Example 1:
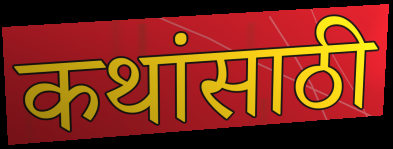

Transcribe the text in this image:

कथांसाठी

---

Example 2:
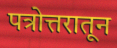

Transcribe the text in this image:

पत्रोत्तरातून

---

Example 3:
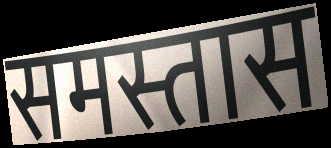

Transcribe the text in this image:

समस्तास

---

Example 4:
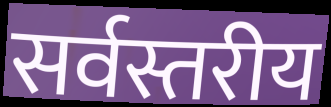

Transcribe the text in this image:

सर्वस्तरीय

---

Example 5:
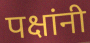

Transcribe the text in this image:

पक्षांनी